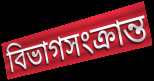
বিভাগসংক্রান্ত